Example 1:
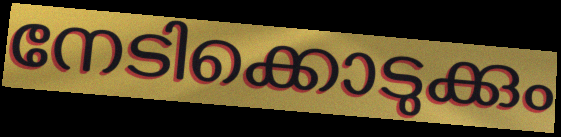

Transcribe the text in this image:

നേടിക്കൊടുക്കും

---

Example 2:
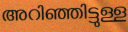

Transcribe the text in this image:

അറിഞ്ഞിട്ടുള്ള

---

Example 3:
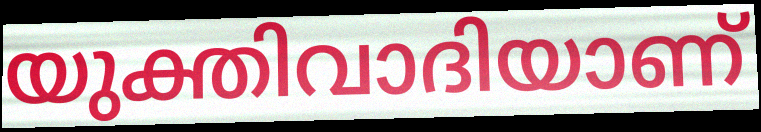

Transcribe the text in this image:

യുക്തിവാദിയാണ്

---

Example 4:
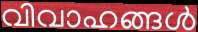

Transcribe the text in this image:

വിവാഹങ്ങൾ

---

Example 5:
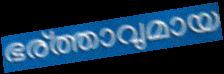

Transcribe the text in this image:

ഭര്ത്താവുമായ